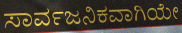
ಸಾರ್ವಜನಿಕವಾಗಿಯೇ